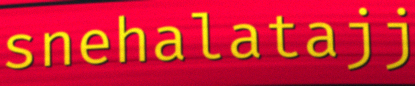
snehalatajj